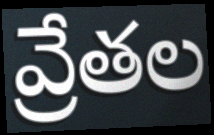
వ్రేతల